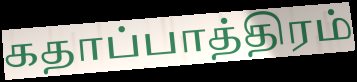
கதாப்பாத்திரம்